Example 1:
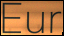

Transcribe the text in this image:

Eur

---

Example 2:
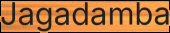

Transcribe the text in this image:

Jagadamba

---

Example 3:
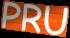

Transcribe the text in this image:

PRU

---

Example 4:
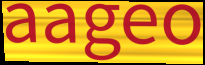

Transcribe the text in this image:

aageo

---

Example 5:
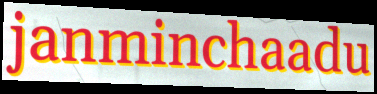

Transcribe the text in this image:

janminchaadu